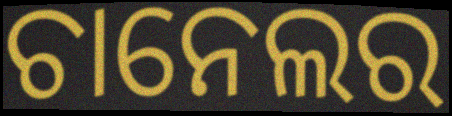
ଚାନେଲର